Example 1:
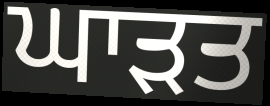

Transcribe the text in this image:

ਘਾੜਤ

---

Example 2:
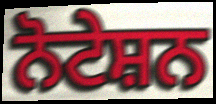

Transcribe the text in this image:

ਨੋਟੇਸ਼ਨ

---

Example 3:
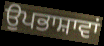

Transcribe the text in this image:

ਉਪਭਾਸ਼ਾਵਾਂ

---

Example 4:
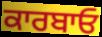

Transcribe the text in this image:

ਕਾਰਬਾਓ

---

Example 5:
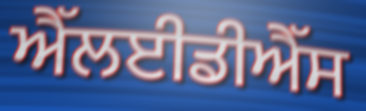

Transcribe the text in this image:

ਐੱਲਈਡੀਐੱਸ